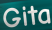
Gita